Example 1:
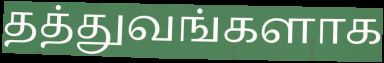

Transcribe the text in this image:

தத்துவங்களாக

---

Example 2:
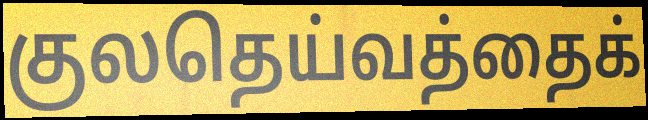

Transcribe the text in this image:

குலதெய்வத்தைக்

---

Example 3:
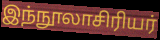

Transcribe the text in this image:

இந்நூலாசிரியர்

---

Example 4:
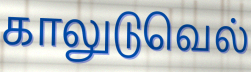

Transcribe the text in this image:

காலுடுவெல்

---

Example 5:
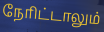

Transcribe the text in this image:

நேரிட்டாலும்